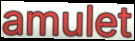
amulet